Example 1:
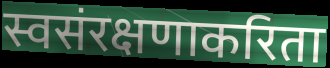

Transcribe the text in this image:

स्वसंरक्षणाकरिता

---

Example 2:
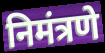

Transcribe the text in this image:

निमंत्रणे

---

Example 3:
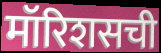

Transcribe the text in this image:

मॉरिशसची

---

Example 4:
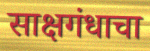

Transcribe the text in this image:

साक्षगंधाचा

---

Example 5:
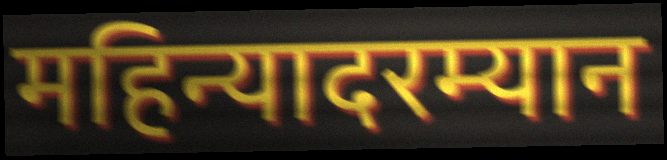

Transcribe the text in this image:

महिन्यादरम्यान